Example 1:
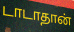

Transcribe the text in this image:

டாடாதான்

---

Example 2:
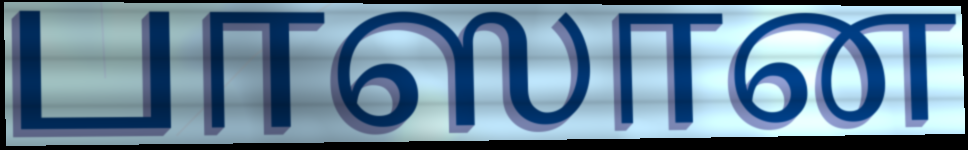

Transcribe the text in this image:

பாஸான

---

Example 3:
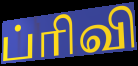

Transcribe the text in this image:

ப்ரிவி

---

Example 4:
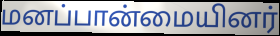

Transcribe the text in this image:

மனப்பான்மையினர்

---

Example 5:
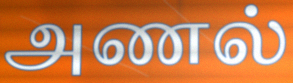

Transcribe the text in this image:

அணல்